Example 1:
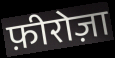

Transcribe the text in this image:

फ़ीरोज़ा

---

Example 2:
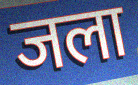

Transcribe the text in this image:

जला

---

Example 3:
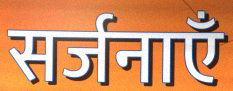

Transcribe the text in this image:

सर्जनाएँ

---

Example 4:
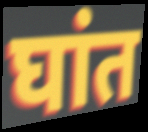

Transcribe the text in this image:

घांत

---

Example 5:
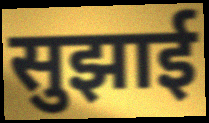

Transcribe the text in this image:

सुझाई